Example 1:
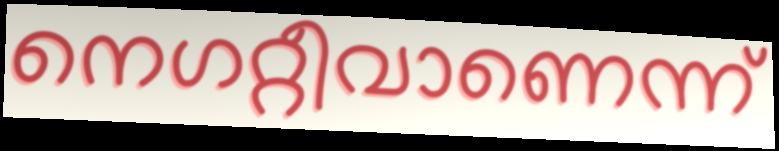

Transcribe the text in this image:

നെഗറ്റീവാണെന്ന്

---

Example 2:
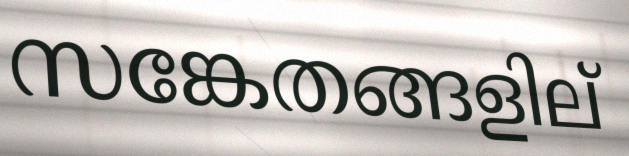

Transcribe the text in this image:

സങ്കേതങ്ങളില്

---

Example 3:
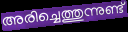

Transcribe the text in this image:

അരിച്ചെത്തുന്നുണ്ട്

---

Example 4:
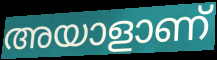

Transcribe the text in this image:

അയാളാണ്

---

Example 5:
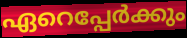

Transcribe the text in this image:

ഏറെപ്പേർക്കും